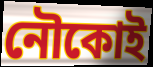
নৌকোই